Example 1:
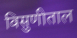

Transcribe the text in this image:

विसुणीताल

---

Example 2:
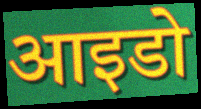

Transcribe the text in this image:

आइडो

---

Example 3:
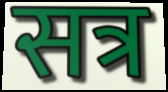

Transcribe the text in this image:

सत्र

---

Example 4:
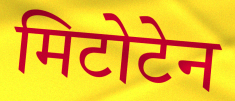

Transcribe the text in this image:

मिटोटेन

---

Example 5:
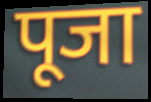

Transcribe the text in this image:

पूजा